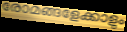
രോമങ്ങളേക്കാളും